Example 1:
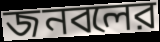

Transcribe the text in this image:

জনবলের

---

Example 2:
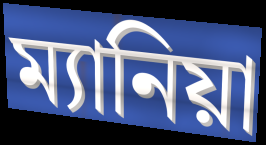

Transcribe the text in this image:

ম্যানিয়া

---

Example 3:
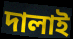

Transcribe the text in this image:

দালাই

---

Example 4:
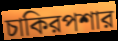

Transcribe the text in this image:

চাকিরপশার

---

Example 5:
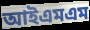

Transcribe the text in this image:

আইএমএম